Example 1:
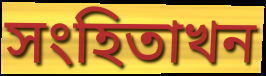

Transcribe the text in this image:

সংহিতাখন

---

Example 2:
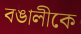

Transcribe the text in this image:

বঙালীকে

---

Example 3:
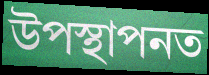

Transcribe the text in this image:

উপস্থাপনত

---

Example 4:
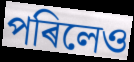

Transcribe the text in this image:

পৰিলেও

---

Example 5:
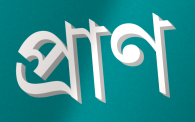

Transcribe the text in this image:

প্ৰাণ